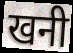
खनी